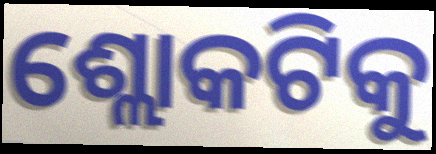
ଶ୍ଲୋକଟିକୁ